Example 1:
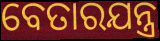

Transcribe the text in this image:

ବେତାରଯନ୍ତ୍ର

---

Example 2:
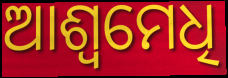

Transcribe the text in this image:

ଆଶ୍ୱମେଧି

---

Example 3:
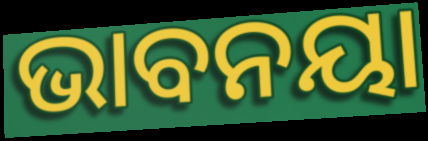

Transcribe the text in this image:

ଭାବନୟା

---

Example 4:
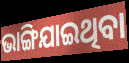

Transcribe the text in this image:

ଭାଙ୍ଗିଯାଇଥିବା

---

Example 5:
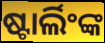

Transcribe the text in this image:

ଷ୍ଟାର୍ଲିଂଙ୍କ